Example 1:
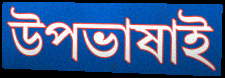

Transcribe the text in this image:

উপভাষাই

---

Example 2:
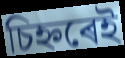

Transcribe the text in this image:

চিহ্নৰেই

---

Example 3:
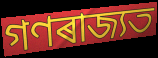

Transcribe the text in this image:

গণৰাজ্যত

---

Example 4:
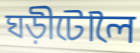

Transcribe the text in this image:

ঘড়ীটোলৈ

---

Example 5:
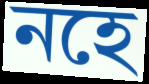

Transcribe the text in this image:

নহে